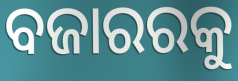
ବଜାରରକୁ